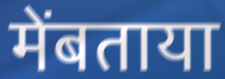
मेंबताया